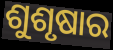
ଶୁଶୃଷାର